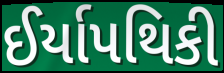
ઈર્યાપથિકી